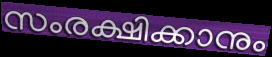
സംരക്ഷിക്കാനും